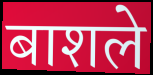
बाशले